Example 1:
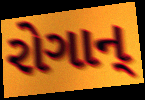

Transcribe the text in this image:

રોગાન્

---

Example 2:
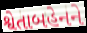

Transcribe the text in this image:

શ્વેતાબહેનને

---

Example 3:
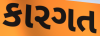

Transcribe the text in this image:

કારગત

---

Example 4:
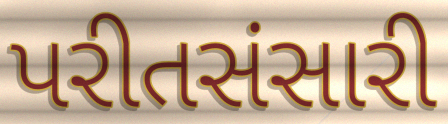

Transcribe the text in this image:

પરીતસંસારી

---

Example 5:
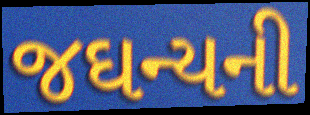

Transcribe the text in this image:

જઘન્યની